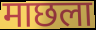
माछला